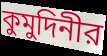
কুমুদিনীর